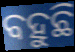
ବହୁଛି